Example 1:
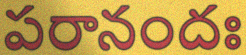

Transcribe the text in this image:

పరానందః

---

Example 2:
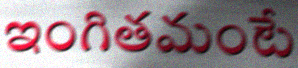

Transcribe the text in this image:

ఇంగితమంటే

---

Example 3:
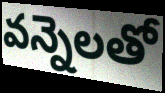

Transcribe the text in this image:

వన్నెలతో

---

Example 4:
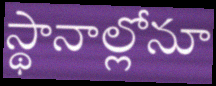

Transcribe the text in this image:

స్థానాల్లోనూ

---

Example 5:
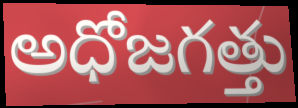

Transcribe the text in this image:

అధోజగత్తు